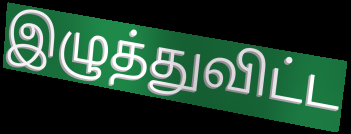
இழுத்துவிட்ட